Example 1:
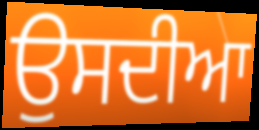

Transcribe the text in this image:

ਉਸਦੀਆ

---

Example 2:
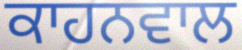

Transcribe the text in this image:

ਕਾਹਨਵਾਲ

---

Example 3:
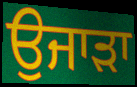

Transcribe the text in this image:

ਉਜਾੜਾ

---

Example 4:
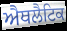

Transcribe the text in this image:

ਐਥਲੈਟਿਕ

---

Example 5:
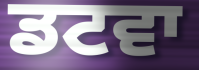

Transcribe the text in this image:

ਡਟਵਾ